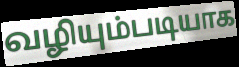
வழியும்படியாக